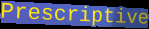
Prescriptive